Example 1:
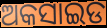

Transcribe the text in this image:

ଅକସାଇଡ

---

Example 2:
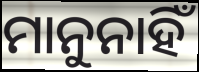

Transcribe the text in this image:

ମାନୁନାହିଁ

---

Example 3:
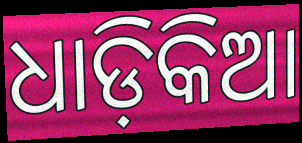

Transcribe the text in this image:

ଧାଡ଼ିକିଆ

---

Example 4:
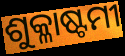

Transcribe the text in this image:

ଶୁକ୍ଳାଷ୍ଟମୀ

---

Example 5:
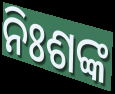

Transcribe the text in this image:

ନିଃଶଙ୍କ